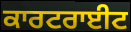
ਕਾਰਟਰਾਈਟ